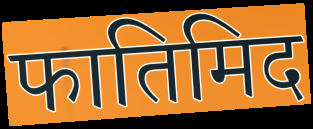
फातिमिद